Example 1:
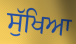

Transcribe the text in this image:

ਸੁੱਖਿਆ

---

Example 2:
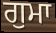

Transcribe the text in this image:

ਗੁਮਾ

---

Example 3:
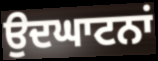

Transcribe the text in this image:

ਉਦਘਾਟਨਾਂ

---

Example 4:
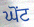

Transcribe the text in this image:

ਘੋਂਟ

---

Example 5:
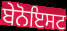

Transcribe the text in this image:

ਬੇਨੋਇਸਟ